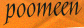
poomeen